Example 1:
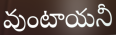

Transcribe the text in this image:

వుంటాయనీ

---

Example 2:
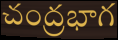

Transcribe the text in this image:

చంద్రభాగ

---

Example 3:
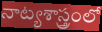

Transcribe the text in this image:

నాట్యశాస్త్రంలో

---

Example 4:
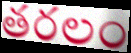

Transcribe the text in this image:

తరలం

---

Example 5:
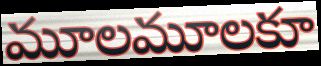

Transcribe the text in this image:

మూలమూలకూ